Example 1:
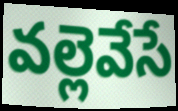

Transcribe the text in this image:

వల్లెవేసే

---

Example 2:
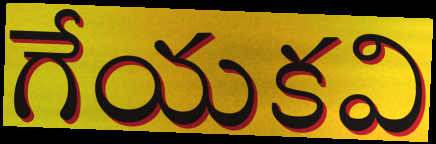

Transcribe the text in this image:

గేయకవి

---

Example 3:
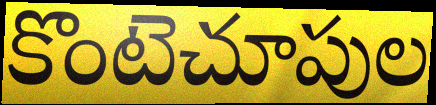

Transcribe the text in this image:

కొంటెచూపుల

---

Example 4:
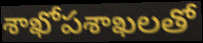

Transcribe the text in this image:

శాఖోపశాఖలతో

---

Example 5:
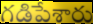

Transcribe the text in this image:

గడిపేశారు